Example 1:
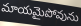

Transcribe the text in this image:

మాయమైపోవును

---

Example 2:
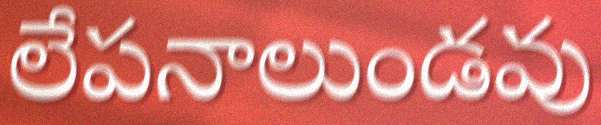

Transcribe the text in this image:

లేపనాలుండవు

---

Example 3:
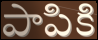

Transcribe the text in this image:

పాపికి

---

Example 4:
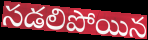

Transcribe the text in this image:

సడలిపోయిన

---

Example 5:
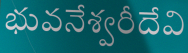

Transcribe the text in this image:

భువనేశ్వరీదేవి